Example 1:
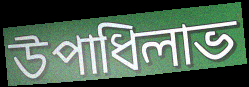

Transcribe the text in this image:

উপাধিলাভ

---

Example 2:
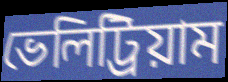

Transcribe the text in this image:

ভেলিট্রিয়াম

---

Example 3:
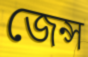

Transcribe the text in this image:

জেন্স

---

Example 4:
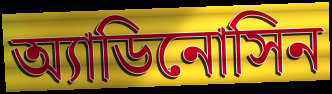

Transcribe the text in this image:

অ্যাডিনোসিন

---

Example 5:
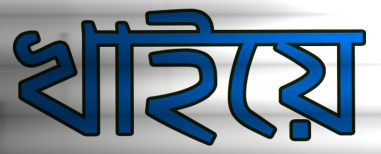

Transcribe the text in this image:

খাইয়ে